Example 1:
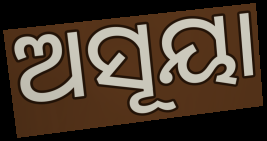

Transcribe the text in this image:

ଅସୂୟା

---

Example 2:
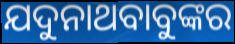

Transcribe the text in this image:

ଯଦୁନାଥବାବୁଙ୍କର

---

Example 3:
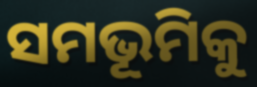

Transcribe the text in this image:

ସମଭୂମିକୁ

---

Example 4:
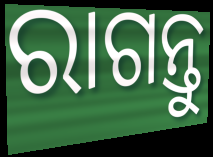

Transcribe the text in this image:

ରାଗନ୍ତୁ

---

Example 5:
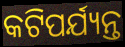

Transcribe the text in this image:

କଟିପର୍ଯ୍ୟନ୍ତ